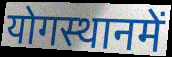
योगस्थानमें